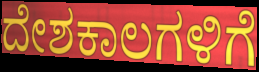
ದೇಶಕಾಲಗಳಿಗೆ